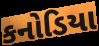
કનોડિયા